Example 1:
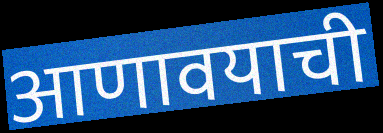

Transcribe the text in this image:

आणावयाची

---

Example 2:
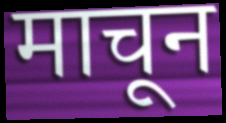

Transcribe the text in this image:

माचून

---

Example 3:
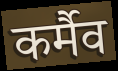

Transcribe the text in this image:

कर्मैव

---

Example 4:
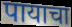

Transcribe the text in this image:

पायाचा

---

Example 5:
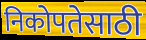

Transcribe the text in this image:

निकोपतेसाठी